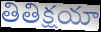
తితిక్షయా